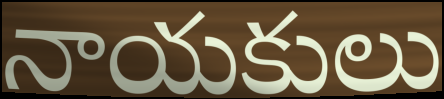
నాయకులు